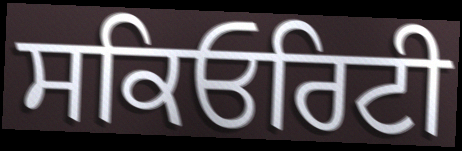
ਸਕਿਓਰਿਟੀ